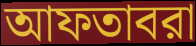
আফতাবরা